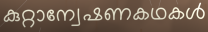
കുറ്റാന്വേഷണകഥകൾ